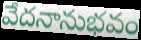
వేదనానుభవం